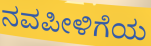
ನವಪೀಳಿಗೆಯ